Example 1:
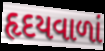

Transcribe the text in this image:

હૃદયવાળાં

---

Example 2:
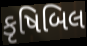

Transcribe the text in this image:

કૃષિબિલ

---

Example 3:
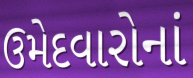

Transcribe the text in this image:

ઉમેદવારોનાં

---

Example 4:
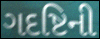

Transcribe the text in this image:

ગદષ્ટિની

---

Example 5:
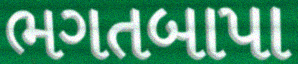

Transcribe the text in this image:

ભગતબાપા